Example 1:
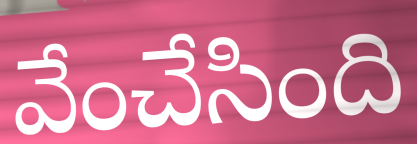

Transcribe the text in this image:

వేంచేసింది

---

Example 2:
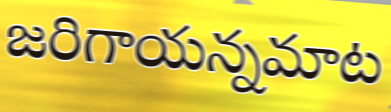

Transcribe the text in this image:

జరిగాయన్నమాట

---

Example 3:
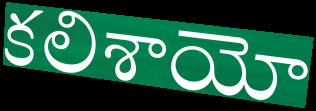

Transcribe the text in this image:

కలిశాయో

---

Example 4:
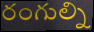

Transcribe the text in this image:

రంగుల్ని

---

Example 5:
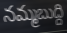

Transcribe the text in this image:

నమ్మబుద్ది